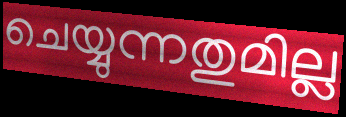
ചെയ്യുന്നതുമില്ല